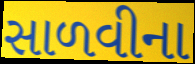
સાળવીના